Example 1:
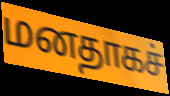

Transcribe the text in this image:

மனதாகச்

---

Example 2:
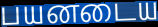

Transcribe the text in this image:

பயனடைய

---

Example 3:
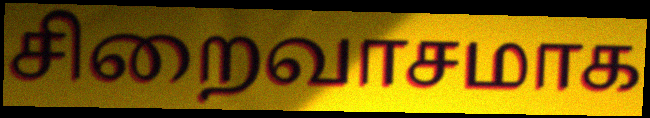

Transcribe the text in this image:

சிறைவாசமாக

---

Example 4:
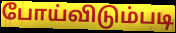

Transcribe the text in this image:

போய்விடும்படி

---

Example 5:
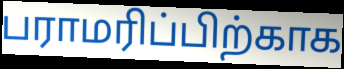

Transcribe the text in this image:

பராமரிப்பிற்காக